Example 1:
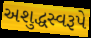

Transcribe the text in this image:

અશુદ્ધસ્વરૂપે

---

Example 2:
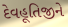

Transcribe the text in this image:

દેવહૂતિજીને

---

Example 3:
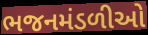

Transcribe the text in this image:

ભજનમંડળીઓ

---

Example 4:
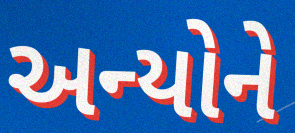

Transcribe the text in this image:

અન્યોને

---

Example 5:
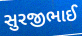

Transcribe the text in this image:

સુરજીભાઈ